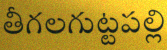
తీగలగుట్టపల్లి